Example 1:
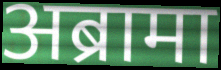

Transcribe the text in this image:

अब्रामा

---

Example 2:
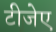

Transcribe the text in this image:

टीजेए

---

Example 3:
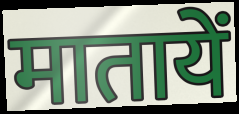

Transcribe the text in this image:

मातायें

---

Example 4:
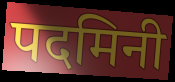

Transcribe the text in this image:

पदमिनी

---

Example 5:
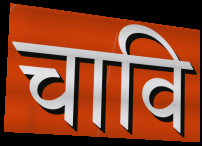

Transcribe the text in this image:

चावि